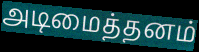
அடிமைத்தனம்